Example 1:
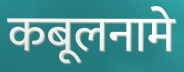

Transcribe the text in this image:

कबूलनामे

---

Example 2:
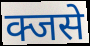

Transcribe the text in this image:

क्जसे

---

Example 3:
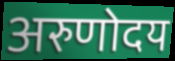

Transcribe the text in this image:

अरुणोदय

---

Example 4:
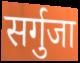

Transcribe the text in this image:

सर्गुजा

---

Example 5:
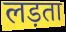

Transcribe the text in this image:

लड़ता